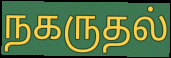
நகருதல்